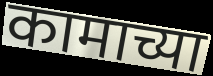
कामाच्या